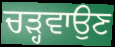
ਚੜ੍ਹਵਾਉਣ